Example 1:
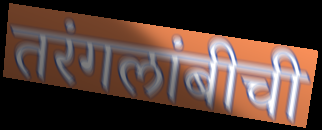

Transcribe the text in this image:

तरंगलांबीची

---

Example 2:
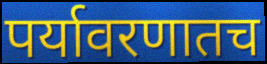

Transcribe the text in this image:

पर्यावरणातच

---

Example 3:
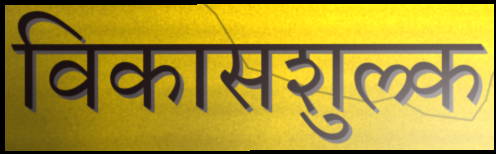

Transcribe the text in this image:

विकासशुल्क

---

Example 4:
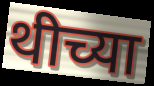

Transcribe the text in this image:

थीच्या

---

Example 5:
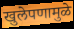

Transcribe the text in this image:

खुलेपणामुळे